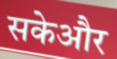
सकेऔर